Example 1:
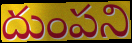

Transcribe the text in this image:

దుంపని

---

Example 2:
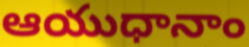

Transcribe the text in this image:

ఆయుధానాం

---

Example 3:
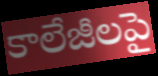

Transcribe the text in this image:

కాలేజీలపై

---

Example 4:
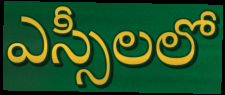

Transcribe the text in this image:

ఎస్సీలలో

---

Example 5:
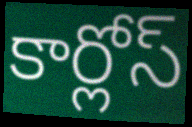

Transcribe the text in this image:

కార్లోస్